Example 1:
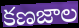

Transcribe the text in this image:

కణజాల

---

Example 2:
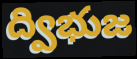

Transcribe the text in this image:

ద్విభుజ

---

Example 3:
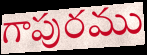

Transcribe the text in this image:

గాపురము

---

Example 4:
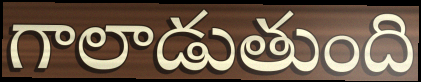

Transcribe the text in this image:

గాలాడుతుంది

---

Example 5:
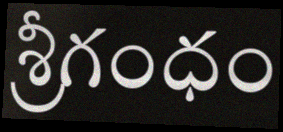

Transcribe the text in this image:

శ్రీగంధం